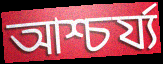
আশ্চর্য্য